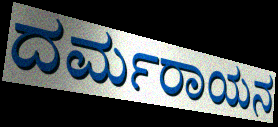
ದರ್ಮರಾಯನ